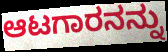
ಆಟಗಾರನನ್ನು